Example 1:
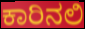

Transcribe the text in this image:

ಕಾರಿನಲಿ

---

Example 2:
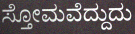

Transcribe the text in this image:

ಸ್ತೋಮವೆದ್ದುದು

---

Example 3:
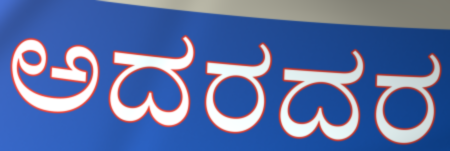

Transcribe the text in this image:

ಅದರದರ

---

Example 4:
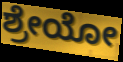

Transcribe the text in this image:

ಶ್ರೇಯೋ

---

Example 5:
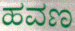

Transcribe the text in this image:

ಹವಣ